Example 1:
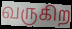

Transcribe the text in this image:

வருகிற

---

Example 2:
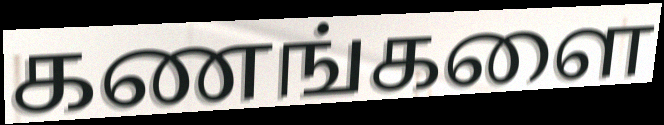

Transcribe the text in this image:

கணங்களை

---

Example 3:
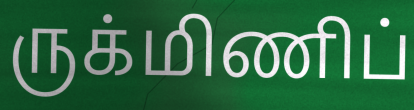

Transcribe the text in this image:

ருக்மிணிப்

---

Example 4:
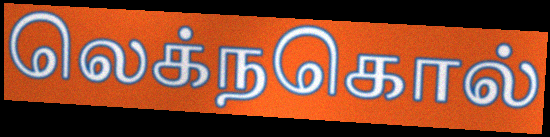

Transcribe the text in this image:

லெக்நகொல்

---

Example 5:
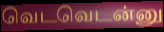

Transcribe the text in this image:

வெடவெடன்னு